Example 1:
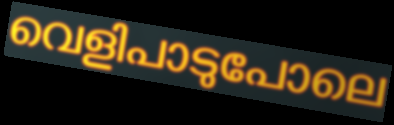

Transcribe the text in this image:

വെളിപാടുപോലെ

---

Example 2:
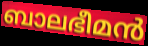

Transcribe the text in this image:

ബാലഭീമൻ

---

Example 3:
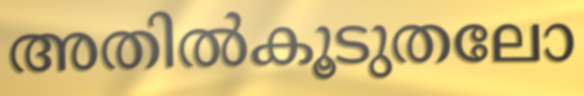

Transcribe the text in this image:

അതിൽകൂടുതലോ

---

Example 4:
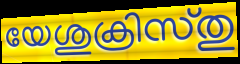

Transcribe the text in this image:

യേശുക്രിസ്തു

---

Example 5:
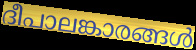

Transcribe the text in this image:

ദീപാലങ്കാരങ്ങൾ